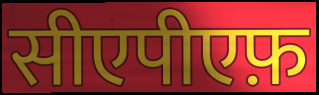
सीएपीएफ़